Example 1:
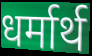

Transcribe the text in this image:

धर्मार्थ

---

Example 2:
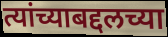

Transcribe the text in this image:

त्यांच्याबद्दलच्या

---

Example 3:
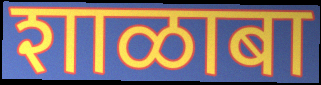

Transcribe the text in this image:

शाळाबा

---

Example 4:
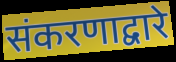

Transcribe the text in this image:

संकरणाद्वारे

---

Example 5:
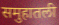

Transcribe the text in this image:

समुहातली